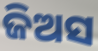
ଜିଅସ